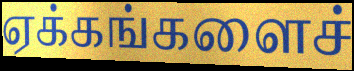
ஏக்கங்களைச்